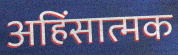
अहिंसात्मक